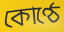
কোণ্ঠে